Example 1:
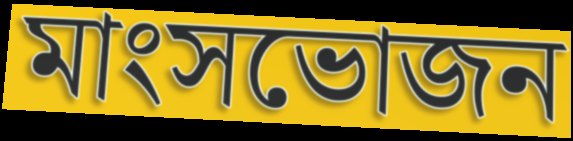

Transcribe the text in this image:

মাংসভোজন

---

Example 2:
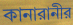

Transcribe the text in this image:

কানারানীর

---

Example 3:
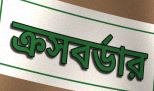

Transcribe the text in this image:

ক্রসবর্ডার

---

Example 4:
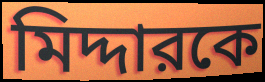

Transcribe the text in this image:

মিদ্দারকে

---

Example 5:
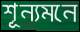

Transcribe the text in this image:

শূন্যমনে